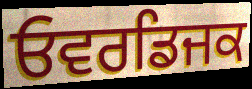
ਓਵਰਡਿਜਕ